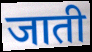
जाती